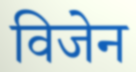
विजेन